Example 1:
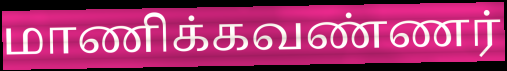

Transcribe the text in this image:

மாணிக்கவண்ணர்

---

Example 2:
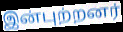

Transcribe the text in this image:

இன்புற்றனர்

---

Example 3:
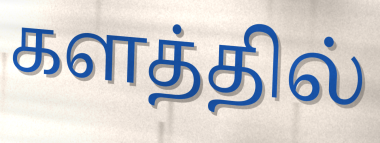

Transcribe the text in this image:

களத்தில்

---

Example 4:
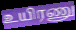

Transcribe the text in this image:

உயிரணு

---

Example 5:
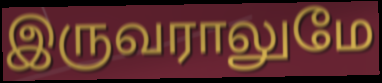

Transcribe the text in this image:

இருவராலுமே